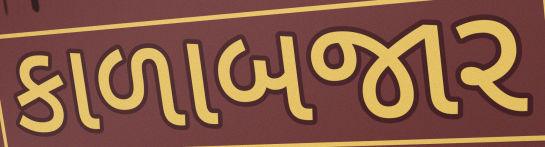
કાળાબજાર